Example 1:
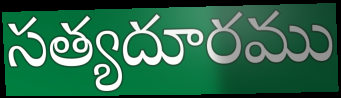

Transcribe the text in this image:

సత్యదూరము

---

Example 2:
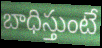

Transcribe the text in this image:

బాధిస్తుంటే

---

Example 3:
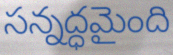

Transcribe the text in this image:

సన్నద్ధమైంది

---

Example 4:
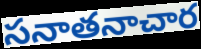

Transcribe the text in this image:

సనాతనాచార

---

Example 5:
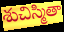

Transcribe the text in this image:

శుచిస్మితా